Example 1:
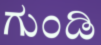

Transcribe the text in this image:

ಗುಂಡಿ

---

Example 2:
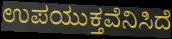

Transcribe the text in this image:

ಉಪಯುಕ್ತವೆನಿಸಿದೆ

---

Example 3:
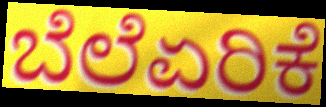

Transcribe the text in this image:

ಬೆಲೆಏರಿಕೆ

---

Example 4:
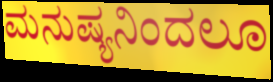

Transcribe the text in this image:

ಮನುಷ್ಯನಿಂದಲೂ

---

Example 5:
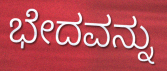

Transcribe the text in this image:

ಭೇದವನ್ನು